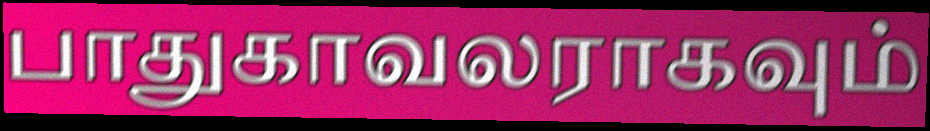
பாதுகாவலராகவும்